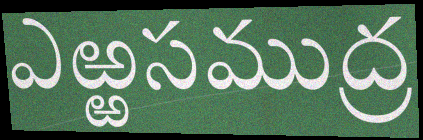
ఎఱ్ఱసముద్ర